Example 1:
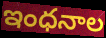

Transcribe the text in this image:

ఇంధనాల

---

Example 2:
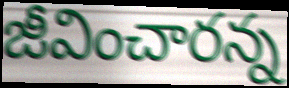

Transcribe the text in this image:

జీవించారన్న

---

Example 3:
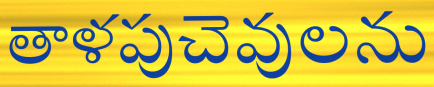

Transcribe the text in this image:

తాళపుచెవులను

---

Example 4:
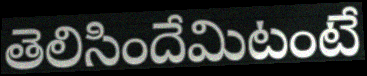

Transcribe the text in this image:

తెలిసిందేమిటంటే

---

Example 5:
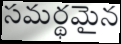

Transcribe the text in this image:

సమర్థమైన